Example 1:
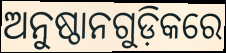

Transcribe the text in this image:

ଅନୁଷ୍ଠାନଗୁଡ଼ିକରେ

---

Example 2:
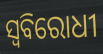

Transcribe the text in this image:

ସ୍ୱବିରୋଧୀ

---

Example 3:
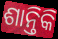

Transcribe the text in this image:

ଶାନ୍ତିକି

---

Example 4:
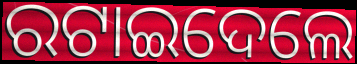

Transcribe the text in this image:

ରଟାଇଦେଲେ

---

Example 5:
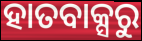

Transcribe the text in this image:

ହାତବାକ୍ସରୁ